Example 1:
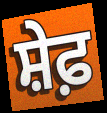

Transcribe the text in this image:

ਸ਼ੇਫ਼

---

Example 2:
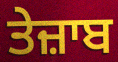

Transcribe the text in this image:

ਤੇਜ਼ਾਬ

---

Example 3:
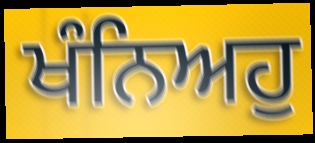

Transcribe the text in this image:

ਖੰਨਿਅਹੁ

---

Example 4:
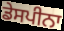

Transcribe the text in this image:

ਡੇਸਪੀਨਾ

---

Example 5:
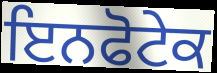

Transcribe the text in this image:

ਇਨਫੋਟੇਕ